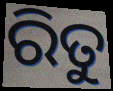
ରିତୁ